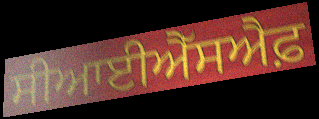
ਸੀਆਈਐੱਸਐਫ਼